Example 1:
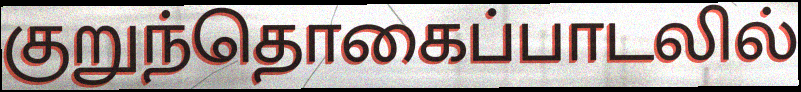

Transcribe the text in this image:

குறுந்தொகைப்பாடலில்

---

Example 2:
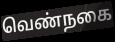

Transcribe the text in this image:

வெண்நகை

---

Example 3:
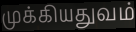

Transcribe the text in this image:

முக்கியதுவம்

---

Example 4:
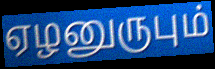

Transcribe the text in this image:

ஏழனுருபும்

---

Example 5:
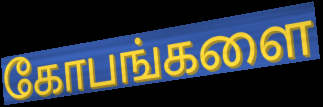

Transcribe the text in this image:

கோபங்களை